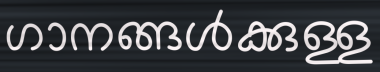
ഗാനങ്ങൾക്കുള്ള